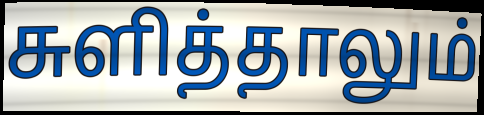
சுளித்தாலும்